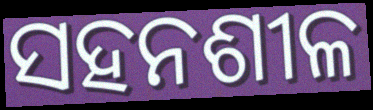
ସହନଶୀଳ